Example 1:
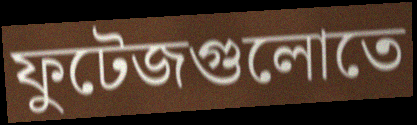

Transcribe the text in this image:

ফুটেজগুলোতে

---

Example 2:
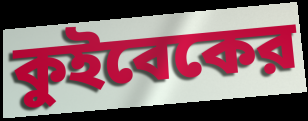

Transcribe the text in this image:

কুইবেকের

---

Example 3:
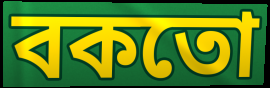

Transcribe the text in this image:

বকতো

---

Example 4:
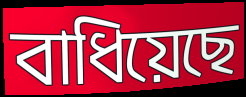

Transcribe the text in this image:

বাধিয়েছে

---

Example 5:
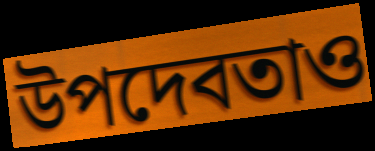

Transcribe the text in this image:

উপদেবতাও